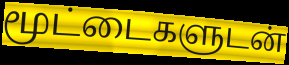
மூட்டைகளுடன்